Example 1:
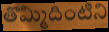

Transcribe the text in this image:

తొమ్మిదింటిని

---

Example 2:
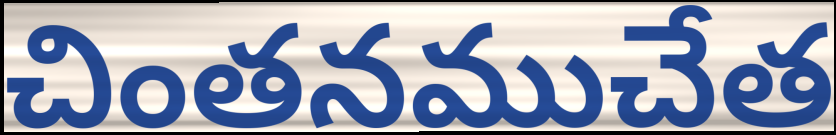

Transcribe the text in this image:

చింతనముచేత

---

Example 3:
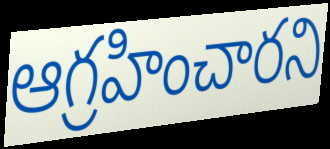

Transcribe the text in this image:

ఆగ్రహించారని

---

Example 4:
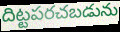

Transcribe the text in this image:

దిట్టపరచబడును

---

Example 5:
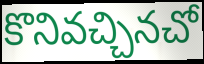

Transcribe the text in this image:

కొనివచ్చినచో